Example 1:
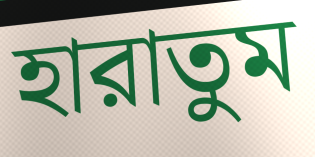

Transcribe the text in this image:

হারাতুম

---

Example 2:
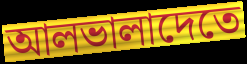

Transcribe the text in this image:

আলভালাদেতে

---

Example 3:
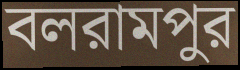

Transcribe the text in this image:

বলরামপুর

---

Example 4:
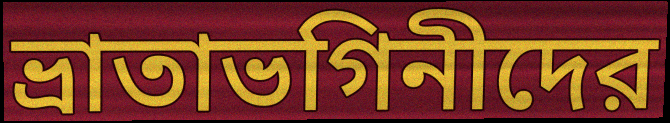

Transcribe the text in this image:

ভ্রাতাভগিনীদের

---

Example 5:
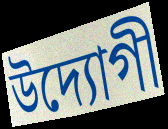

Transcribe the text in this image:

উদ্যোগী